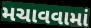
મચાવવામાં